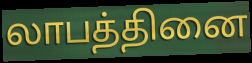
லாபத்தினை